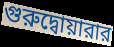
গুরুদ্বোয়ারার